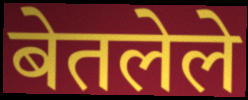
बेतलेले